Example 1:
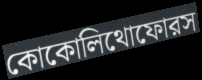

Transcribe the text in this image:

কোকোলিথোফোরস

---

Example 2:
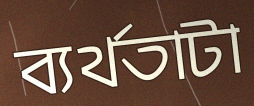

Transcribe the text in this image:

ব্যর্থতাটা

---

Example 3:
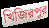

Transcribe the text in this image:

খিজিরপুর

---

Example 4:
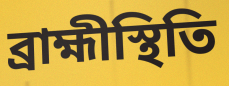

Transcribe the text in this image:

ব্রাহ্মীস্থিতি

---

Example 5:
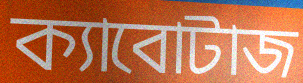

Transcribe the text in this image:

ক্যাবোটাজ